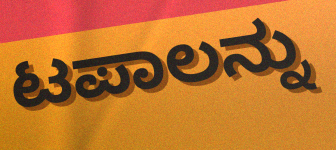
ಟಪಾಲನ್ನು